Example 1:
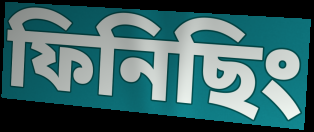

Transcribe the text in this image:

ফিনিছিং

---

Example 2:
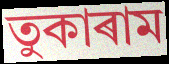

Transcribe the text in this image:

তুকাৰাম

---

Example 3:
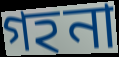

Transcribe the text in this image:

গহনা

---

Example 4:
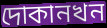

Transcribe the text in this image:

দোকানখন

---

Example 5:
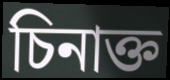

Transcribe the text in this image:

চিনাক্ত